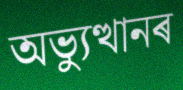
অভ্যুত্থানৰ